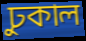
ঢুকাল